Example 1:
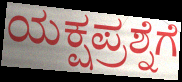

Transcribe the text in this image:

ಯಕ್ಷಪ್ರಶ್ನೆಗೆ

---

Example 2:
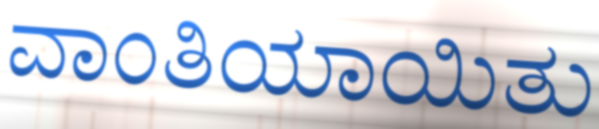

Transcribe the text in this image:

ವಾಂತಿಯಾಯಿತು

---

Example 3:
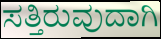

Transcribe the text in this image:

ಸತ್ತಿರುವುದಾಗಿ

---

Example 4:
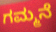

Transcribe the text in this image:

ಗಮ್ಮನೆ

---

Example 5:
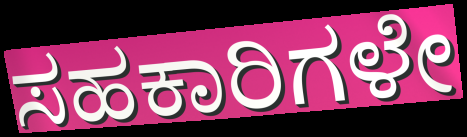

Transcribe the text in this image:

ಸಹಕಾರಿಗಳೇ